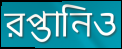
রপ্তানিও